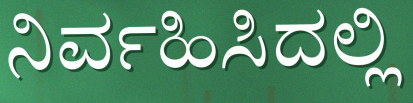
ನಿರ್ವಹಿಸಿದಲ್ಲಿ